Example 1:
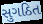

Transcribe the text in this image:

સુગઠિત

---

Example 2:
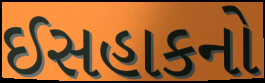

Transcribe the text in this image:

ઈસહાકનો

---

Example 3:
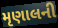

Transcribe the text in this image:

મૃણાલની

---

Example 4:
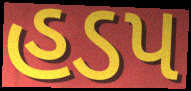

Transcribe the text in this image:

હડપ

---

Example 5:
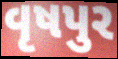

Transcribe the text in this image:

વૃષપુર